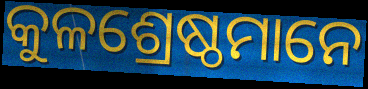
କୁଳଶ୍ରେଷ୍ଠମାନେ